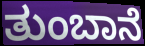
ತುಂಬಾನೆ